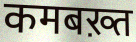
कमबख़्त